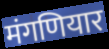
मंगणियार